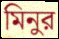
মিনুর